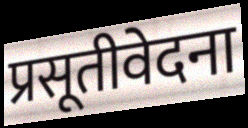
प्रसूतीवेदना